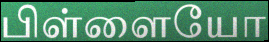
பிள்ளையோ